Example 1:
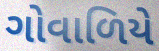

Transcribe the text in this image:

ગોવાળિયે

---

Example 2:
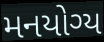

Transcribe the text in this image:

મનયોગ્ય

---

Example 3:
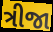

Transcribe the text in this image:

ત્રીજા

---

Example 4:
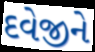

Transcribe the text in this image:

દવેજીને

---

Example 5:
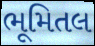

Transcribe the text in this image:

ભૂમિતલ